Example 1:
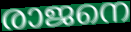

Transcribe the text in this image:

രാജനെ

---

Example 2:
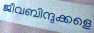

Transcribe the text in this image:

ജീവബിന്ദുക്കളെ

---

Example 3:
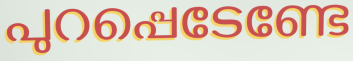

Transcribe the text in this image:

പുറപ്പെടേണ്ടേ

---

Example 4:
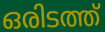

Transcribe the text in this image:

ഒരിടത്ത്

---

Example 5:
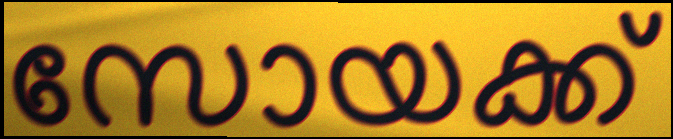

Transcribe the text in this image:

സോയക്ക്